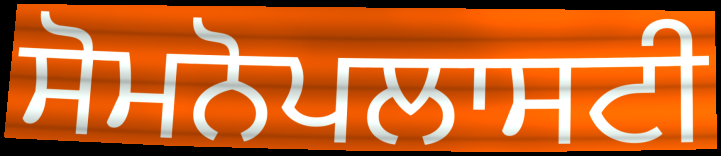
ਸੋਮਨੋਪਲਾਸਟੀ